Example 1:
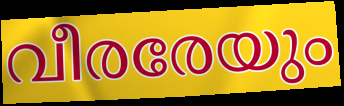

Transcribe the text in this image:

വീരരേയും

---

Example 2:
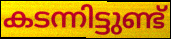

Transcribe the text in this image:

കടന്നിട്ടുണ്ട്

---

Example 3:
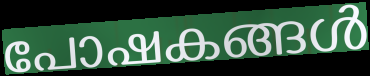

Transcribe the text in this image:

പോഷകങ്ങൾ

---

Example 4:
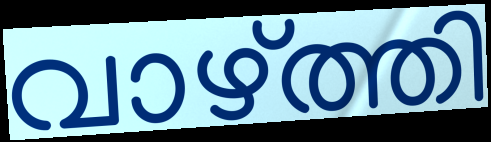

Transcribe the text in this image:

വാഴ്ത്തി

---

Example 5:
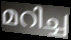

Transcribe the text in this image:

മറിച്ച